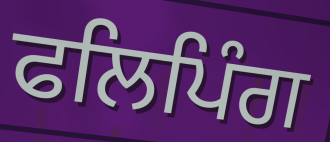
ਫਲਿਪਿੰਗ